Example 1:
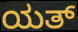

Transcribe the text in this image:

ಯತ್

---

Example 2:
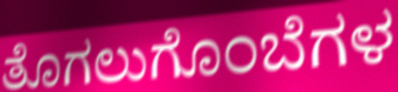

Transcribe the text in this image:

ತೊಗಲುಗೊಂಬೆಗಳ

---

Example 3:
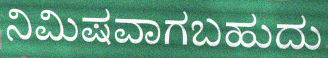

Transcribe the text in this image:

ನಿಮಿಷವಾಗಬಹುದು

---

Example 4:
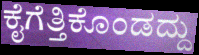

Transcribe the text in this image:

ಕೈಗೆತ್ತಿಕೊಂಡದ್ದು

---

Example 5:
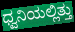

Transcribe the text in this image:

ಧ್ವನಿಯಲ್ಲಿತ್ತು